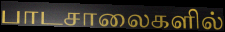
பாடசாலைகளில்